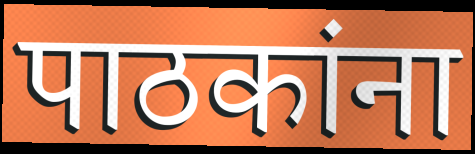
पाठकांना